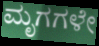
ಮೃಗಗಳೇ